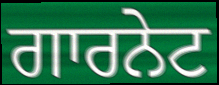
ਗਾਰਨੇਟ